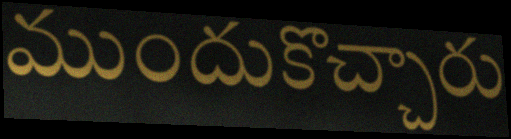
ముందుకొచ్చారు